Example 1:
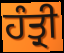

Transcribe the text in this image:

ਹੰਤ੍ਰੀ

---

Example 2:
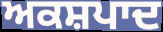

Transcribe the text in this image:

ਅਕਸ਼ਪਾਦ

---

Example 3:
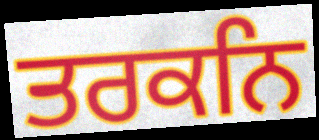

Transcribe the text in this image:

ਤਰਕਨਿ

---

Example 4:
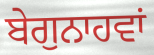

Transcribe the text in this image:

ਬੇਗੁਨਾਹਵਾਂ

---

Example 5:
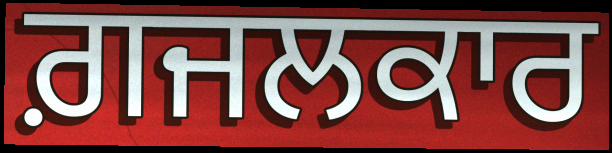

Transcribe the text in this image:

ਗ਼ਜਲਕਾਰ